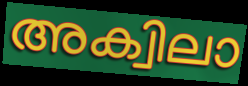
അക്വിലാ